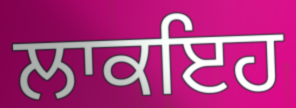
ਲਾਕਇਹ